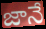
జానే